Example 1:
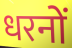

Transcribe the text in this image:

धरनों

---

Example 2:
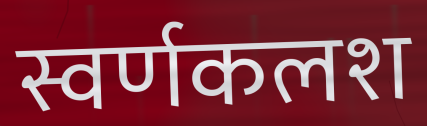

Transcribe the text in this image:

स्वर्णकलश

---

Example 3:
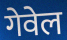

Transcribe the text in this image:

गेवेल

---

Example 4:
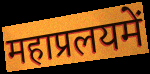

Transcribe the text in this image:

महाप्रलयमें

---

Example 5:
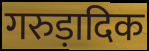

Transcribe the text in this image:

गरुड़ादिक